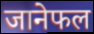
जानेफल